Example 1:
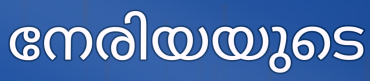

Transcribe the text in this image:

നേരിയയുടെ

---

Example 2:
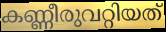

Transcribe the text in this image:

കണ്ണീരുവറ്റിയത്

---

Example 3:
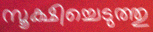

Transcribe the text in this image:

സൂക്ഷിച്ചെടുത്തു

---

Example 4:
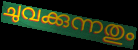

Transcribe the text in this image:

ചുവക്കുന്നതും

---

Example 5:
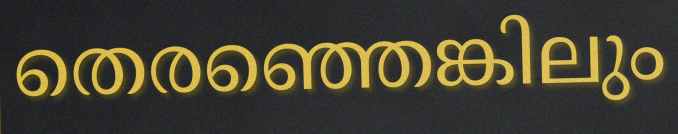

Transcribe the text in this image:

തെരഞ്ഞെങ്കിലും